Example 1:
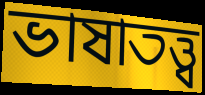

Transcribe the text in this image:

ভাষাতত্ত্ব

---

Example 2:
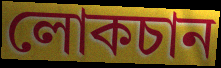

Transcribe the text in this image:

লোকচান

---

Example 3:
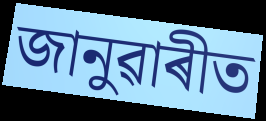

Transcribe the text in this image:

জানুৱাৰীত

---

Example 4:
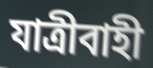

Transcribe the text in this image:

যাত্ৰীবাহী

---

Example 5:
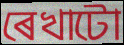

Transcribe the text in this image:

ৰেখাটো